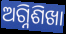
ଅଗ୍ନିଶିଖା